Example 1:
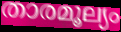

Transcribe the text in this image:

താരമൂല്യം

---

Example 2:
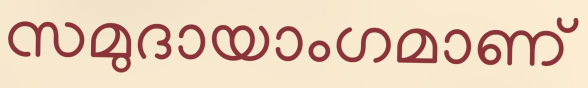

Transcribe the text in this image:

സമുദായാംഗമാണ്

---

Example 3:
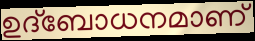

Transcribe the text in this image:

ഉദ്ബോധനമാണ്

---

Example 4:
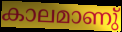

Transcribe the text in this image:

കാലമാണു്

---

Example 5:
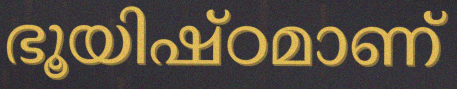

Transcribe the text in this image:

ഭൂയിഷ്ഠമാണ്